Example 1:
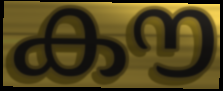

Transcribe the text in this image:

കൗ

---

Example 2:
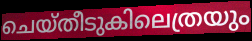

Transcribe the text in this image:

ചെയ്തീടുകിലെത്രയും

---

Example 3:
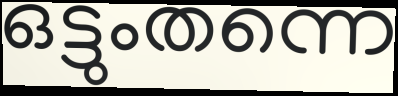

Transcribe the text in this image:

ഒട്ടുംതന്നെ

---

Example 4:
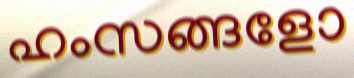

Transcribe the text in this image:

ഹംസങ്ങളോ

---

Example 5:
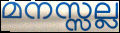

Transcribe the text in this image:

മനസ്സല്ല